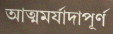
আত্মমর্যাদাপূর্ণ